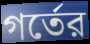
গর্তের